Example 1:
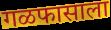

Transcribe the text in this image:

गळफासाला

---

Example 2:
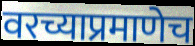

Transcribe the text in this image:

वरच्याप्रमाणेच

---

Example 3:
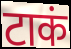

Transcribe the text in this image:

टाकं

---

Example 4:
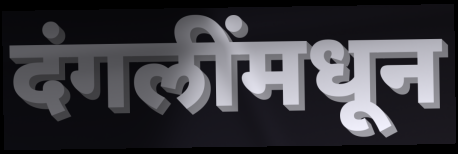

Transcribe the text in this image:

दंगलींमधून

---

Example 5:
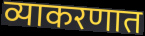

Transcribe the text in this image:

व्याकरणात